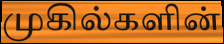
முகில்களின்